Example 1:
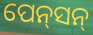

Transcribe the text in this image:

ପେନ୍‍ସନ୍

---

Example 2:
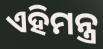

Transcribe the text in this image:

ଏହିମନ୍ତ୍ର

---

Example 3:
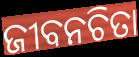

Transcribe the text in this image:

ଜୀବନଚିତା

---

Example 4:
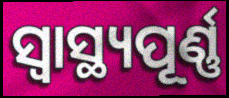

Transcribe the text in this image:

ସ୍ବାସ୍ଥ୍ୟପୂର୍ଣ୍ଣ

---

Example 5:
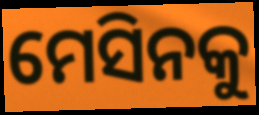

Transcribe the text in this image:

ମେସିନକୁ